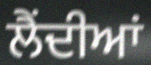
ਲੈਂਦੀਆਂ